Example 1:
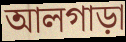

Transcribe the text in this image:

আলগাড়া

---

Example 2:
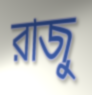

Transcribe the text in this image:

রাজু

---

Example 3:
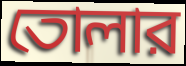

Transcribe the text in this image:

তোলার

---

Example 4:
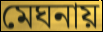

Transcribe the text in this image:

মেঘনায়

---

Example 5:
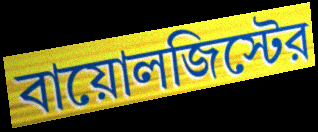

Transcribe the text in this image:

বায়োলজিস্টের